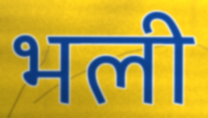
भली